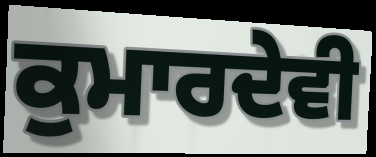
ਕੁਮਾਰਦੇਵੀ